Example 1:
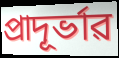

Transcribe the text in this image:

প্ৰাদূৰ্ভাৱ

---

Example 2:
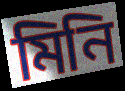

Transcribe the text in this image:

মিনি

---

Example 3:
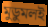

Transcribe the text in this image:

মুডুমলই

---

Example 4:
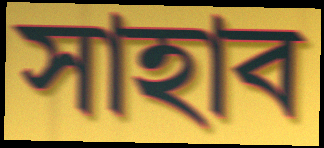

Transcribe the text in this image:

সাহাব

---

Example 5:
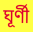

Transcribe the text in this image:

ঘূৰ্ণী